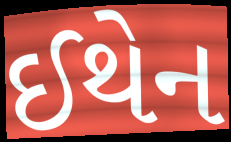
ઈથેન